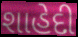
શાહેદી